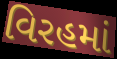
વિરહમાં